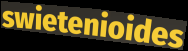
swietenioides